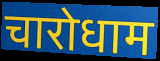
चारोधाम